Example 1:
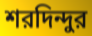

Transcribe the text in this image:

শরদিন্দুর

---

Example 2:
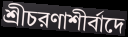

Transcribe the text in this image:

শ্রীচরণাশীর্বাদে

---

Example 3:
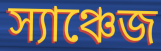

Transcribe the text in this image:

স্যাঞ্চেজ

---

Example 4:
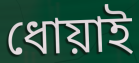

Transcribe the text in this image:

ধোয়াই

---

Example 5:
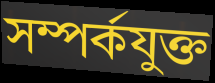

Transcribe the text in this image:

সম্পর্কযুক্ত